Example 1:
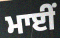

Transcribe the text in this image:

ਮਾਈਂ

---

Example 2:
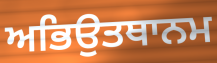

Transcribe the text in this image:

ਅਭਿਉਤਥਾਨਮ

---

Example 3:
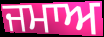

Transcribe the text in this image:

ਜਮਾਅ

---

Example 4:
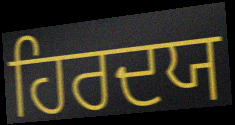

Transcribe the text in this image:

ਹਿਰਦਯ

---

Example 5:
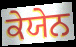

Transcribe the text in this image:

ਕੇਯੇਨ